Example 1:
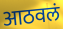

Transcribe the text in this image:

आठवलं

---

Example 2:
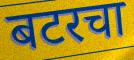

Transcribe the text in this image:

बटरचा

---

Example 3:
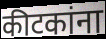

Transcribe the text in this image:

कीटकांना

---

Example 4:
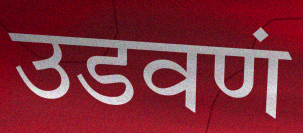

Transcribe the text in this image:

उडवणं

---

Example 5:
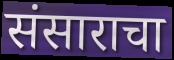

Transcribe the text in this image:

संसाराचा